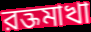
রক্তমাখা